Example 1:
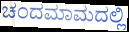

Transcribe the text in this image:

ಚಂದಮಾಮದಲ್ಲಿ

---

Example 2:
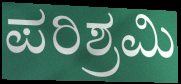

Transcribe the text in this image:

ಪರಿಶ್ರಮಿ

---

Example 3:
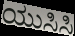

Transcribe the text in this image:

ಯುಸಿಸಿ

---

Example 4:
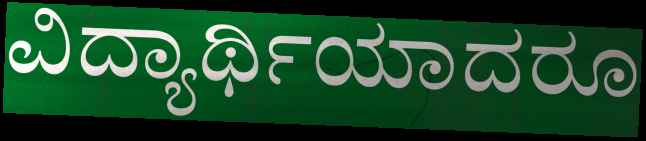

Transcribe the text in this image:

ವಿದ್ಯಾರ್ಥಿಯಾದರೂ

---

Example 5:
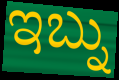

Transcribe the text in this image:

ಇಬ್ನು